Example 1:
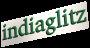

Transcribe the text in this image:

indiaglitz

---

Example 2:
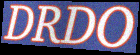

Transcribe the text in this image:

DRDO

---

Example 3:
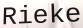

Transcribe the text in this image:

Rieke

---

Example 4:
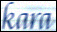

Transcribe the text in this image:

kara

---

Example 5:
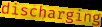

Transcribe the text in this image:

discharging